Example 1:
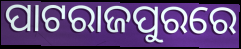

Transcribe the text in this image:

ପାଟରାଜପୁରରେ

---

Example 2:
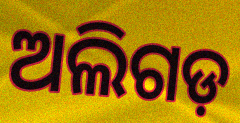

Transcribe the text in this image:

ଅଲିଗଡ଼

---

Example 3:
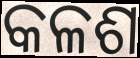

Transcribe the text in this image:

କଳଶ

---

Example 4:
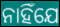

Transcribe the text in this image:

ନାହିଁଯେ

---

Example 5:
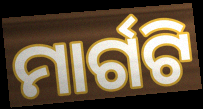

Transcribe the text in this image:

ମାର୍ଗଟି